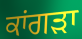
ਕਾਂਗੜਾ